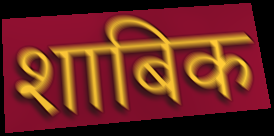
शाबिक